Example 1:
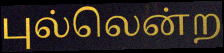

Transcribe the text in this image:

புல்லென்ற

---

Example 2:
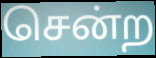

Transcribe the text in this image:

சென்ற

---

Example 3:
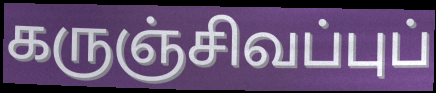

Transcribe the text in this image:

கருஞ்சிவப்புப்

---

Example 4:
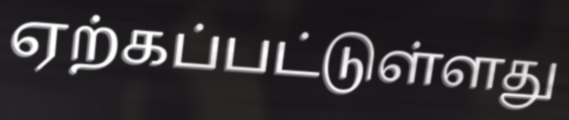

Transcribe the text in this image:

ஏற்கப்பட்டுள்ளது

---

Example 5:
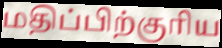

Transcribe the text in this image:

மதிப்பிற்குரிய